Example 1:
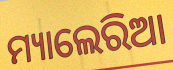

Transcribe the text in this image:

ମ୍ଯାଲେରିଆ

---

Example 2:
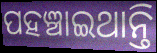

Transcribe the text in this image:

ପହଞ୍ଚାଇଥାନ୍ତି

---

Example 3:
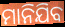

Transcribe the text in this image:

ମାନିଯିବ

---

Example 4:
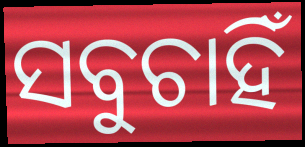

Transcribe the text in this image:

ସବୁଚାହିଁ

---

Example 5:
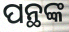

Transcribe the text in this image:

ପନ୍ଥଙ୍କ